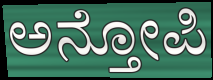
ಅನ್ತೋಪಿ